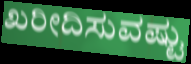
ಖರೀದಿಸುವಷ್ಟು